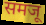
समजू